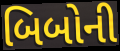
બિબોની